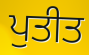
ਪੁਤੀਤ